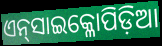
ଏନ୍‌ସାଇକ୍ଳୋପିଡ଼ିଆ